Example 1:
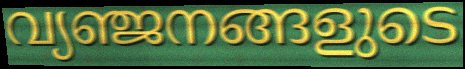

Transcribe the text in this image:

വ്യഞ്ജനങ്ങളുടെ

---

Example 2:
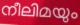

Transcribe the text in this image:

നീലിമയും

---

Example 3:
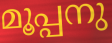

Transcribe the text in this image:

മൂപ്പനു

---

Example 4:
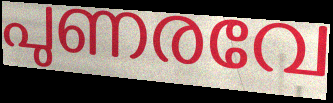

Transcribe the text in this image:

പുണരവേ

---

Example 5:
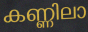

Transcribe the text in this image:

കണ്ണിലാ